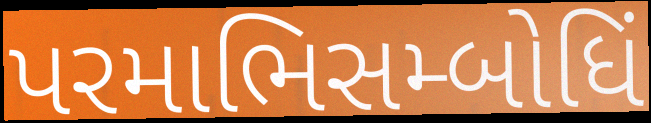
પરમાભિસમ્બોધિં